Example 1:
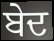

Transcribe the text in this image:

ਬੇਦ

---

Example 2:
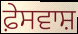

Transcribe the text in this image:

ਫ਼ੇਸਵਾਸ਼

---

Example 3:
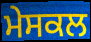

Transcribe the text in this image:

ਮੇਸਕਲ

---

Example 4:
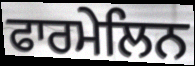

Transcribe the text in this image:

ਫਾਰਮੇਲਿਨ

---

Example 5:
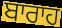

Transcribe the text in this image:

ਬਾਰਾਹ